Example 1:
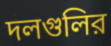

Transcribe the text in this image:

দলগুলির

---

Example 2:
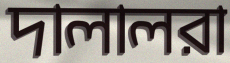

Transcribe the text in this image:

দালালরা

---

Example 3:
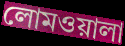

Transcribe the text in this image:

লোমওয়ালা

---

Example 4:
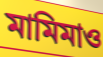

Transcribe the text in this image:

মামিমাও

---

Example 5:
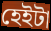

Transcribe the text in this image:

হেইটা